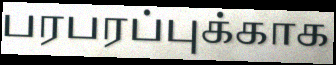
பரபரப்புக்காக